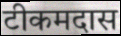
टीकमदास